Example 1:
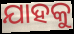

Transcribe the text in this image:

ଯାହକୁ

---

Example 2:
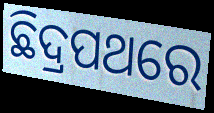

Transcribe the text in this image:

ଛିଦ୍ରପଥରେ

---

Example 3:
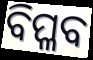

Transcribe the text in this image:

ବିପ୍ଳବ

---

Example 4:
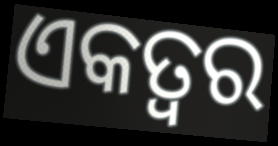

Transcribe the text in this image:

ଏକତ୍ବର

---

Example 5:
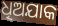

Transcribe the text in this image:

ଧିଅଯାକ